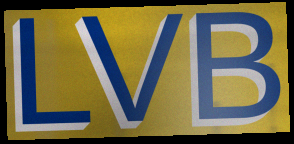
LVB